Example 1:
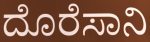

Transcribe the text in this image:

ದೊರೆಸಾನಿ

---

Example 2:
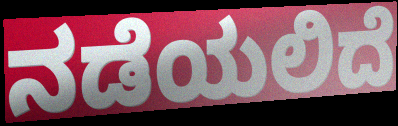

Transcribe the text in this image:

ನಡೆಯಲಿದೆ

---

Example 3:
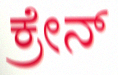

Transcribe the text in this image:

ಕ್ರೇನ್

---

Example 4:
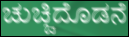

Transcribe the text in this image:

ಚುಚ್ಚಿದೊಡನೆ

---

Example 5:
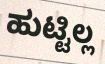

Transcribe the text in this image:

ಹುಟ್ಟಿಲ್ಲ